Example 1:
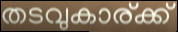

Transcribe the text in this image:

തടവുകാര്ക്ക്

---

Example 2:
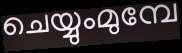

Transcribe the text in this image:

ചെയ്യുംമുമ്പേ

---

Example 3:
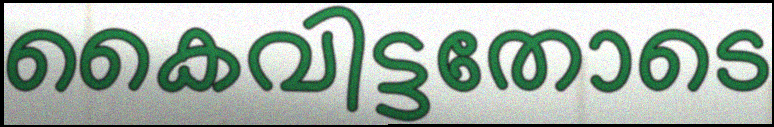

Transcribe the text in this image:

കൈവിട്ടതോടെ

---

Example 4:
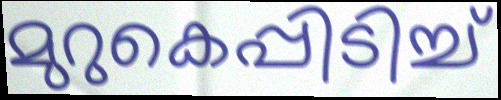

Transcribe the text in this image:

മുറുകെപ്പിടിച്ച്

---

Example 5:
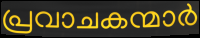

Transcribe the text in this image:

പ്രവാചകന്മാർ